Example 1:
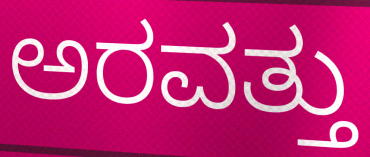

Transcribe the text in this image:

ಅರವತ್ತು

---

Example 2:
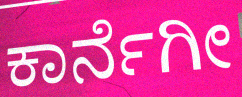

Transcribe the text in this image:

ಕಾರ್ನೆಗೀ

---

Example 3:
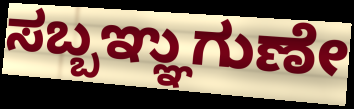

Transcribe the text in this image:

ಸಬ್ಬಞ್ಞುಗುಣೇ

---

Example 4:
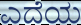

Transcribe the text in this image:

ಎದೆಯ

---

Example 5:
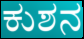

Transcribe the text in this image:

ಕುಶನ